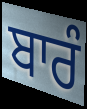
ਬਾਰੰ